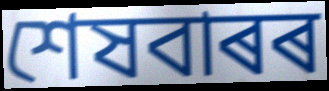
শেষবাৰৰ